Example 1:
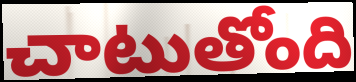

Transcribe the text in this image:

చాటుతోంది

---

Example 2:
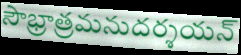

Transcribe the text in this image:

సౌభ్రాత్రమనుదర్శయన్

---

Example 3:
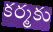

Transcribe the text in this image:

కర్మకు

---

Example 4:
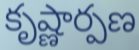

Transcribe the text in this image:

కృష్ణార్పణ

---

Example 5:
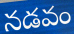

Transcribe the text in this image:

నడవం